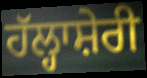
ਹੱਲ੍ਹਾਸ਼ੇਰੀ